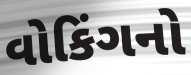
વોકિંગનો